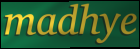
madhye